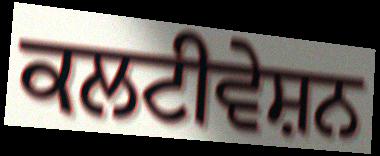
ਕਲਟੀਵੇਸ਼ਨ